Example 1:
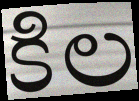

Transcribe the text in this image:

కిల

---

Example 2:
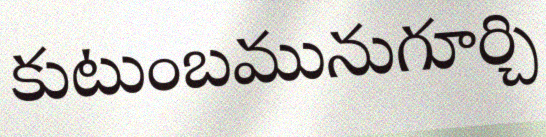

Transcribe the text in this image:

కుటుంబమునుగూర్చి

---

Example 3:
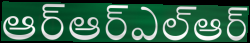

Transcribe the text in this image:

ఆర్ఆర్ఎల్ఆర్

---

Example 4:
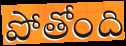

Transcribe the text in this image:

పోతోంది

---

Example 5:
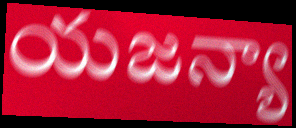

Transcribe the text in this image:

యజన్యా